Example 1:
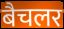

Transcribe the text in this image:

बैचलर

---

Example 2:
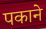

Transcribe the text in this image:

पकाने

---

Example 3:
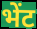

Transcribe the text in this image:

भेंट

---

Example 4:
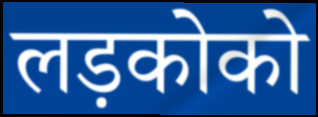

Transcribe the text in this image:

लड़कोको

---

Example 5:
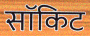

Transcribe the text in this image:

सॉकिट